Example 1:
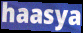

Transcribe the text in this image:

haasya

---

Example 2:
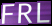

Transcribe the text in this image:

FRL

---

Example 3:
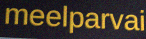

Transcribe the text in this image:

meelparvai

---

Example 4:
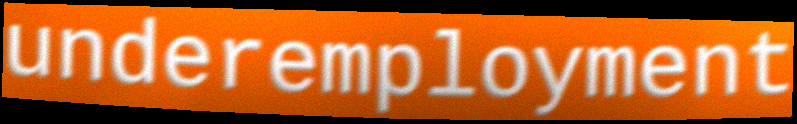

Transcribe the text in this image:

underemployment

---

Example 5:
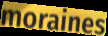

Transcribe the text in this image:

moraines